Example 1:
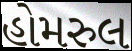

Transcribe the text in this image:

હોમરુલ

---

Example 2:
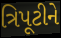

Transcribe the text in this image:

ત્રિપૂટીને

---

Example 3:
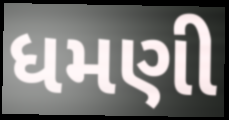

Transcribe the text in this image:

ધમણી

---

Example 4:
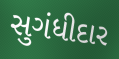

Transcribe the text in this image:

સુગંધીદાર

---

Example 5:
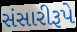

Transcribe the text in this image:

સંસારીરૂપે